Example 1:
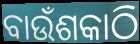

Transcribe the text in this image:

ବାଉଁଶକାଠି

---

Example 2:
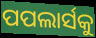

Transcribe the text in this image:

ପପଲାର୍ସକୁ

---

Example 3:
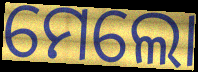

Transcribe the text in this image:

ମେଲୋ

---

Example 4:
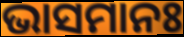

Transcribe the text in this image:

ଭାସମାନଃ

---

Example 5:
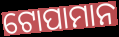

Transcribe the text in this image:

ଟୋପାମାନ